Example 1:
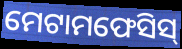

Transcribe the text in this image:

ମେଟାମଫେସିସ୍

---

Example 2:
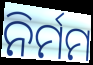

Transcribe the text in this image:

ନିର୍ମମ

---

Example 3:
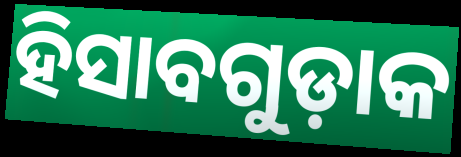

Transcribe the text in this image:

ହିସାବଗୁଡ଼ାକ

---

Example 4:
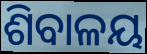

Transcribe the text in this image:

ଶିବାଳୟ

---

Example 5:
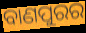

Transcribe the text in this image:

ବାଣପୁରର